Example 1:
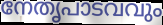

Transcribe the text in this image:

നേതൃപാടവവും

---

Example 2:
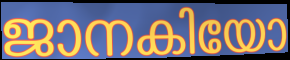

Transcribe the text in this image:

ജാനകിയോ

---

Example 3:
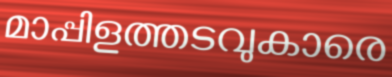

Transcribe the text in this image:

മാപ്പിളത്തടവുകാരെ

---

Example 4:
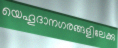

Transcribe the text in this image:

യെഹൂദാനഗരങ്ങളിലേക്കു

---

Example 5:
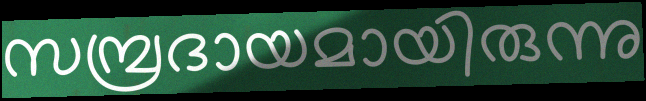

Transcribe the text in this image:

സമ്പ്രദായമായിരുന്നു